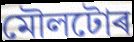
মৌলটোৰ